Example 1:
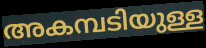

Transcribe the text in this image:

അകമ്പടിയുള്ള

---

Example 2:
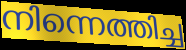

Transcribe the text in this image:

നിന്നെത്തിച്ച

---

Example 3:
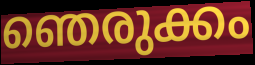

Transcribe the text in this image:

ഞെരുക്കം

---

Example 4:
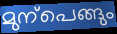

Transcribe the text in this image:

മുന്പെങ്ങും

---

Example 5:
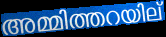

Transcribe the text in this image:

അമ്മിത്തറയില്